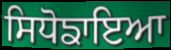
ਸਿਧੋਙਾਇਆ